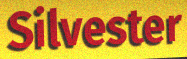
Silvester